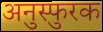
अनुस्फुरक